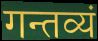
गन्तव्यं